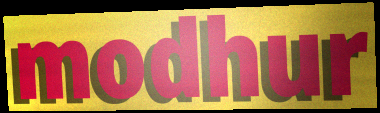
modhur